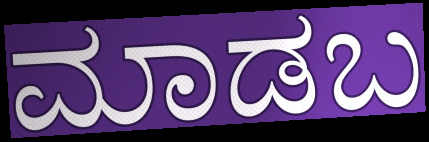
ಮಾಡಬ